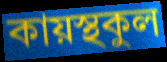
কায়স্থকুল